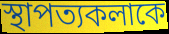
স্থাপত্যকলাকে